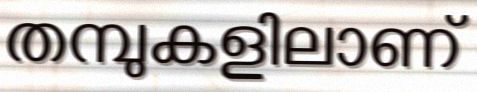
തമ്പുകളിലാണ്